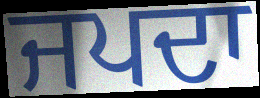
ਜਪਦਾ